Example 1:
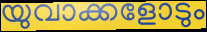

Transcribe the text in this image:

യുവാക്കളോടും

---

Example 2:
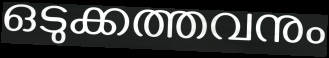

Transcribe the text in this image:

ഒടുക്കത്തവനും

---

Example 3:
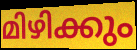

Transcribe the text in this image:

മിഴിക്കും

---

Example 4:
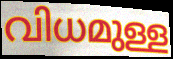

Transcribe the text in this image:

വിധമുള്ള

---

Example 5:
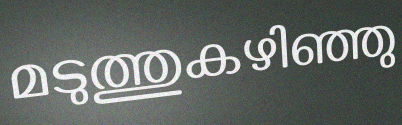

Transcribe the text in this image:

മടുത്തുകഴിഞ്ഞു